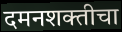
दमनशक्तीचा